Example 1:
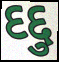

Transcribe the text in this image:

દદ્દુ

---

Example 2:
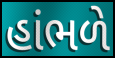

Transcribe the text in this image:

હાંભળે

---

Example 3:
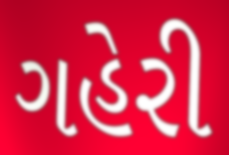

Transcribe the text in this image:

ગહેરી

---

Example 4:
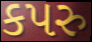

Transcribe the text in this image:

કપરુ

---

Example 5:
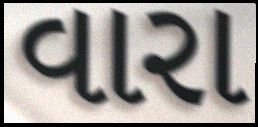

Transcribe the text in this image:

વારા